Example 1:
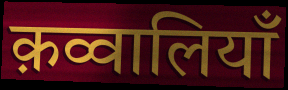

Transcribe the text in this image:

क़व्वालियाँ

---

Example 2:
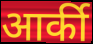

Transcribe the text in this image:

आर्की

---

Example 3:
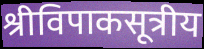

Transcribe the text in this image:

श्रीविपाकसूत्रीय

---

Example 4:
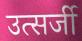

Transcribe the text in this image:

उत्सर्जी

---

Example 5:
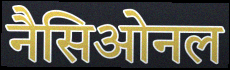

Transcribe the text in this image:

नैसिओनल